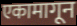
एकामागून